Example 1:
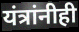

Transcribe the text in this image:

यंत्रांनीही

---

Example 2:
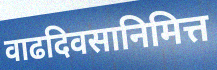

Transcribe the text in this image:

वाढदिवसानिमित्त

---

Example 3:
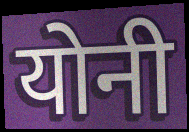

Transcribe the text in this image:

योनी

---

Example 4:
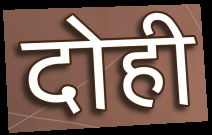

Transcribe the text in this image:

दोही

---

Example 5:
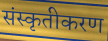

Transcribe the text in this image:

संस्कृतीकरण